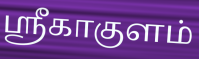
ஸ்ரீகாகுளம்